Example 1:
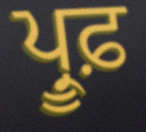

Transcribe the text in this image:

ਪ੍ਰੂਫ਼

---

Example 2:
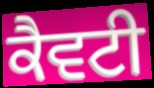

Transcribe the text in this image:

ਕੈਵਟੀ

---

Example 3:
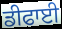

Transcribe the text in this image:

ਡੀਫਾਈ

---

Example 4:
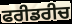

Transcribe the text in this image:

ਫਰੀਡਰੀਚ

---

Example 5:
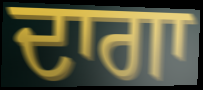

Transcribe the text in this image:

ਦਾਗਾ